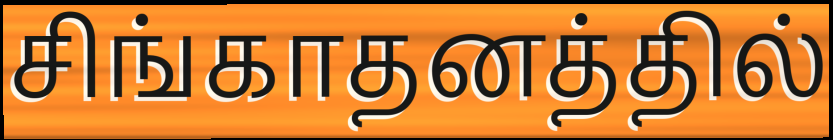
சிங்காதனத்தில்